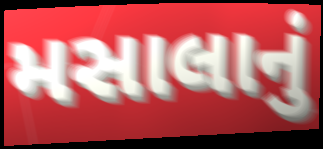
મસાલાનું